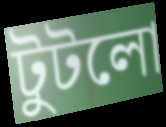
টুটলো